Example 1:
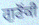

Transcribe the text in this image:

ਗੁਣੋਂਕੀ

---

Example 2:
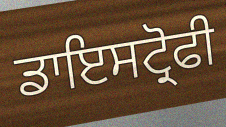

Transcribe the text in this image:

ਡਾਇਸਟ੍ਰੋਫੀ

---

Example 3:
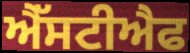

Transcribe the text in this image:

ਐੱਸਟੀਐਫ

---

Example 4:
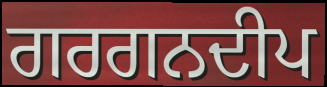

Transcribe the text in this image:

ਗਰਗਨਦੀਪ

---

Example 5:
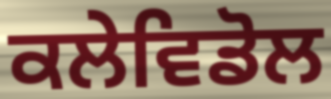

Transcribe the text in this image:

ਕਲੇਵਿਡੋਲ